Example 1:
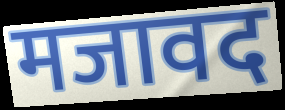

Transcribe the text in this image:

मजावद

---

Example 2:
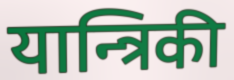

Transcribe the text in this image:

यान्त्रिकी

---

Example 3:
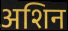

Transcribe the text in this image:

अशिन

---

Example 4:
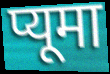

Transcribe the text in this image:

प्यूमा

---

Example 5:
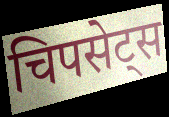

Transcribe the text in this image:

चिपसेट्स